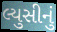
લ્યુસીનું